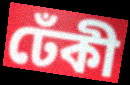
ঢেঁকী